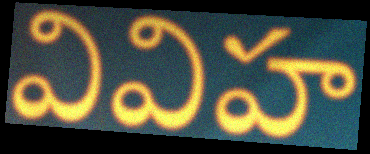
వివిహ